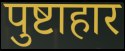
पुष्टाहार